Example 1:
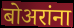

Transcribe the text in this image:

बोअरांना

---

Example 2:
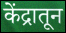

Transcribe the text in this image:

केंद्रातून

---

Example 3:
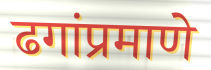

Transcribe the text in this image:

ढगांप्रमाणे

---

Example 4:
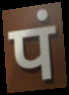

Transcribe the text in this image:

पं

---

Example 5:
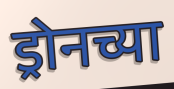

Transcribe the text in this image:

ड्रोनच्या